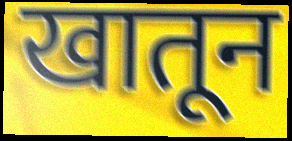
खातून